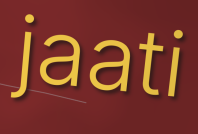
jaati